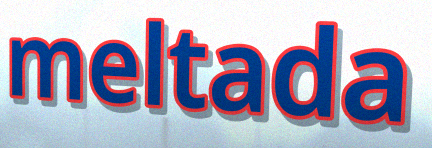
meltada